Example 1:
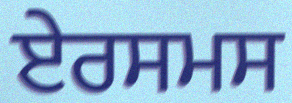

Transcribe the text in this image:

ਏਰਸਮਸ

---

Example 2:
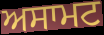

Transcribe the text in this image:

ਅਸਾਮਟ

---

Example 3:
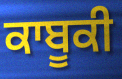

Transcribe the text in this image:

ਕਾਬੂਕੀ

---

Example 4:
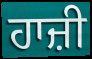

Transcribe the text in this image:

ਹਾਜ਼ੀ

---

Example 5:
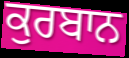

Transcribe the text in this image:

ਕੁਰਬਾਨ